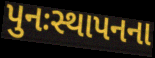
પુનઃસ્થાપનના